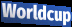
Worldcup